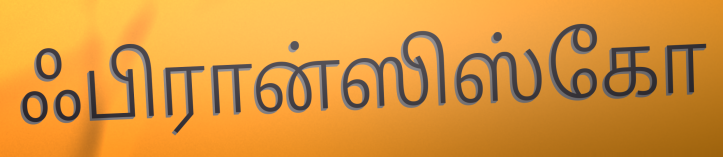
ஃபிரான்ஸிஸ்கோ